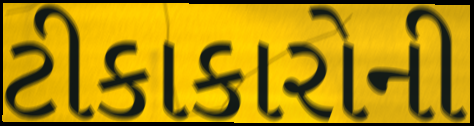
ટીકાકારોની